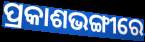
ପ୍ରକାଶଭଙ୍ଗୀରେ